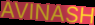
AVINASH